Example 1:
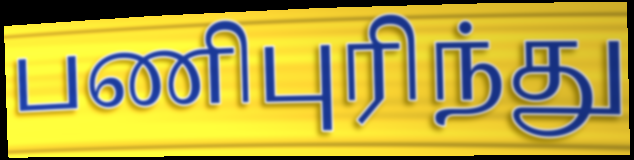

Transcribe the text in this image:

பணிபுரிந்து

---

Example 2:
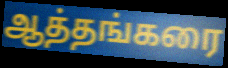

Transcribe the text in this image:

ஆத்தங்கரை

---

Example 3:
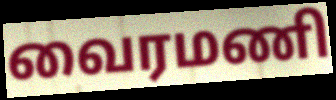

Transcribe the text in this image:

வைரமணி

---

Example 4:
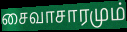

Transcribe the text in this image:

சைவாசாரமும்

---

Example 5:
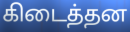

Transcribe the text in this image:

கிடைத்தன